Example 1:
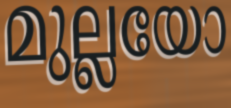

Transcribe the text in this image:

മുല്ലയോ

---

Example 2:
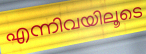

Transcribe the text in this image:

എന്നിവയിലൂടെ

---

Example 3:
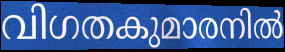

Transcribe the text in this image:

വിഗതകുമാരനിൽ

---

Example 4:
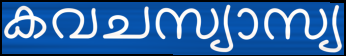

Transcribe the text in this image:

കവചസ്യാസ്യ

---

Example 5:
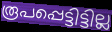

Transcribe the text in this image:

രൂപപ്പെട്ടിട്ടില്ല